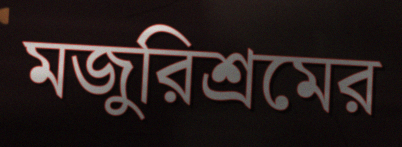
মজুরিশ্রমের